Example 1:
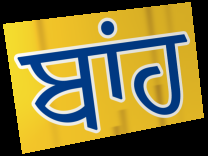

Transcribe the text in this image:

ਬਾਂਹ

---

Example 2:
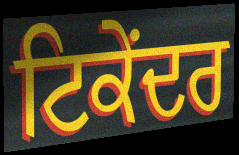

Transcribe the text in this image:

ਟਿਕੇਂਦਰ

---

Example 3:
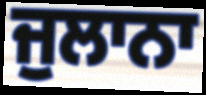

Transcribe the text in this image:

ਜੁਲਾਨਾ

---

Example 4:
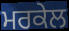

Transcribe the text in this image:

ਮਰਕੇਲ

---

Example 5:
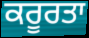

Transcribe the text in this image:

ਕਰੂਰਤਾ